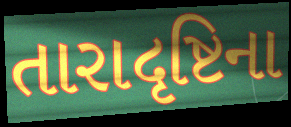
તારાદૃષ્ટિના